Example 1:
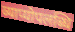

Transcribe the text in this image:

व्याप्योपलब्धि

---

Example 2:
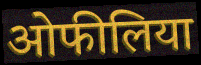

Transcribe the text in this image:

ओफीलिया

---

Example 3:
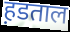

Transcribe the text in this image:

ह़डताल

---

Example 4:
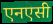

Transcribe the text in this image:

एनएसी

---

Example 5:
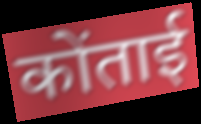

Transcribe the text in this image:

कोंताई